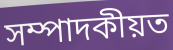
সম্পাদকীয়ত